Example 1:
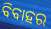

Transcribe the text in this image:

ବିବାହର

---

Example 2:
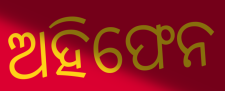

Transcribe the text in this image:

ଅହିଫେନ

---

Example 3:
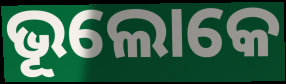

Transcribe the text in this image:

ଭୂଲୋକେ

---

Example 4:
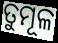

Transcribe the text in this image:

ତୁମୂଳ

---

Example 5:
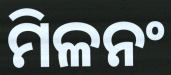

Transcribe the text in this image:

ମିଳନଂ